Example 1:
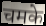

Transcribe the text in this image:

चमके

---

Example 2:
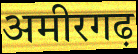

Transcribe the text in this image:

अमीरगढ़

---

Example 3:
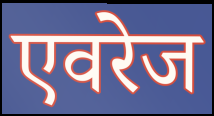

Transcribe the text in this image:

एवरेज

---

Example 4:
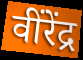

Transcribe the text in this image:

वींरेंद्र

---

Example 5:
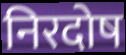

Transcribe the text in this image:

निरदोष